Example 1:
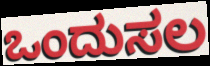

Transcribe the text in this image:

ಒಂದುಸಲ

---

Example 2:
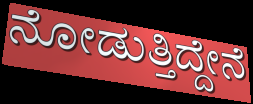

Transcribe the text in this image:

ನೋಡುತ್ತಿದ್ದೇನೆ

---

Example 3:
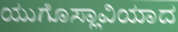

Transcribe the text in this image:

ಯುಗೊಸ್ಲಾವಿಯಾದ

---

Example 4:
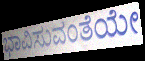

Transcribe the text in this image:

ಭಾವಿಸುವಂತೆಯೇ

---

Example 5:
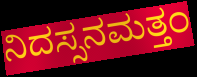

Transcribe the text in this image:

ನಿದಸ್ಸನಮತ್ತಂ